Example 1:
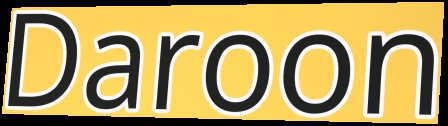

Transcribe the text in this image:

Daroon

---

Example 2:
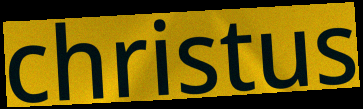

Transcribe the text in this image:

christus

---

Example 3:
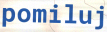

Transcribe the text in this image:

pomiluj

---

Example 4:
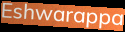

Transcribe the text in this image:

Eshwarappa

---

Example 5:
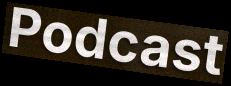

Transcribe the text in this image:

Podcast